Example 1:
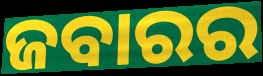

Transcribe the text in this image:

ଜବାରର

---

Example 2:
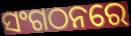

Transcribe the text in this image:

ସଂଗଠନରେ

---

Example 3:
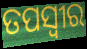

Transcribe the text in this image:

ତପସ୍ଵୀର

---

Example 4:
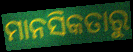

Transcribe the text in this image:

ମାନସିକତାରୁ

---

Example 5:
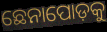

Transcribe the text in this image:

ଛେନାପୋଡ଼କୁ